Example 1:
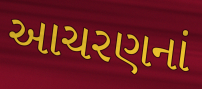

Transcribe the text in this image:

આચરણનાં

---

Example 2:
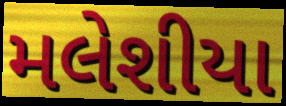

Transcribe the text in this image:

મલેશીયા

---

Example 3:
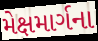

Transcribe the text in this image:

મેક્ષમાર્ગના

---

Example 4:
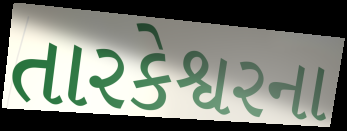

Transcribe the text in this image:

તારકેશ્વરના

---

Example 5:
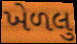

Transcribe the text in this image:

ખેળલુ